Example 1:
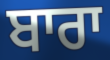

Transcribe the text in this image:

ਬਾਰਾ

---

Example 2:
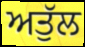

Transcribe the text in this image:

ਅਤੁੱਲ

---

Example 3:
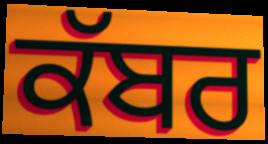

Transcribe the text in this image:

ਕੱਬਰ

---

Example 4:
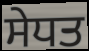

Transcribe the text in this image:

ਸੇਧਤ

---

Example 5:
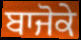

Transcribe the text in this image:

ਬਾਜੋਕੇ